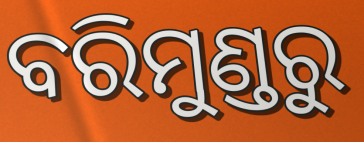
ବରିମୁଣ୍ଡରୁ